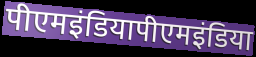
पीएमइंडियापीएमइंडिया